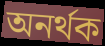
অনর্থক